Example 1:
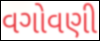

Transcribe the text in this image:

વગોવણી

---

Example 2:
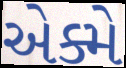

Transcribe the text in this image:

એક્મે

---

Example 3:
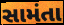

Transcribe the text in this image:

સામંતા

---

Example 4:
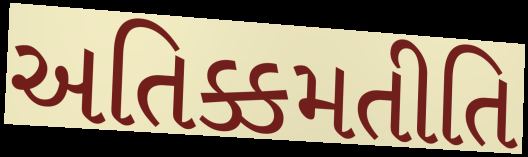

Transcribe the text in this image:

અતિક્કમતીતિ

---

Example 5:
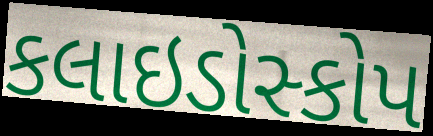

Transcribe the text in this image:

કલાઇડોસ્કોપ